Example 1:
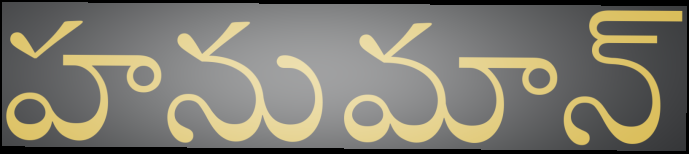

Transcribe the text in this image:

హనుమాన్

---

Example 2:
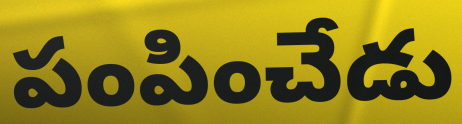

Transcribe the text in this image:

పంపించేడు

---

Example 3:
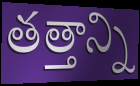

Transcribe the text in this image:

తత్తాన్ని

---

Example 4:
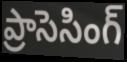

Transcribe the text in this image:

ప్రాసెసింగ్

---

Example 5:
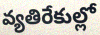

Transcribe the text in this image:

వ్యతిరేకుల్లో